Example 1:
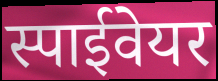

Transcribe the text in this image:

स्पाईवेयर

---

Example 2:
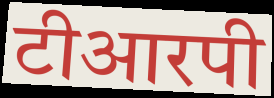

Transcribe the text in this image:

टीआरपी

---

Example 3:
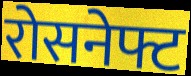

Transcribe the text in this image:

रोसनेफ्ट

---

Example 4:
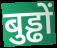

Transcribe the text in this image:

बुड्ढों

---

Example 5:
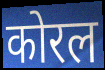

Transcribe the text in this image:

कोरल